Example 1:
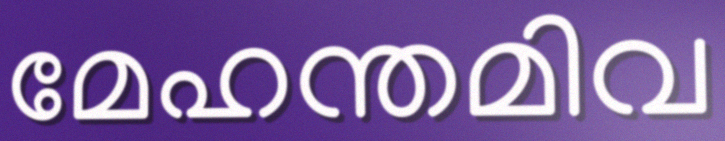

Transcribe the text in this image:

മേഹന്തമിവ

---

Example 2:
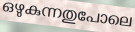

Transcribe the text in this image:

ഒഴുകുന്നതുപോലെ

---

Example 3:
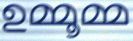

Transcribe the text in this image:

ഉമ്മൂമ്മ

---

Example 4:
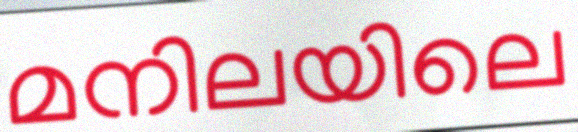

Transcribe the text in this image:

മനിലയിലെ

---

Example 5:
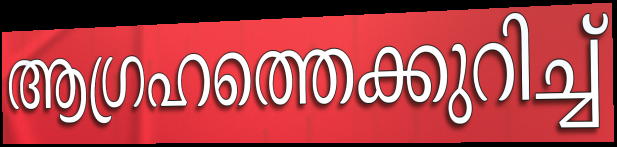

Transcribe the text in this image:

ആഗ്രഹത്തെക്കുറിച്ച്